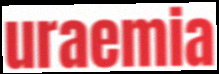
uraemia